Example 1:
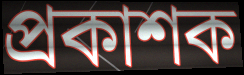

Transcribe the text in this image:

প্ৰকাশক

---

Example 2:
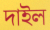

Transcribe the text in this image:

দাইল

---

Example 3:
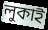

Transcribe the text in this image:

লুকাই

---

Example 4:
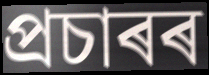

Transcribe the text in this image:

প্ৰচাৰৰ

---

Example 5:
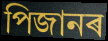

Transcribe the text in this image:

পিজানৰ